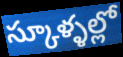
స్కూళ్ళల్లో